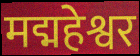
मद्महेश्वर